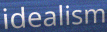
idealism